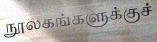
நூலகங்களுக்குச்